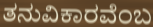
ತನುವಿಕಾರವೆಂಬ